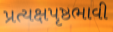
પ્રત્યક્ષપૃષ્ઠભાવી